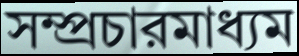
সম্প্রচারমাধ্যম